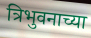
त्रिभुवनाच्या